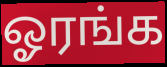
ஓரங்க